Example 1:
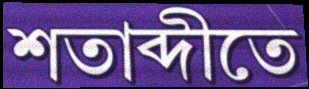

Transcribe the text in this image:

শতাব্দীতে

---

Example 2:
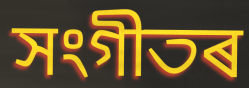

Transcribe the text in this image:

সংগীতৰ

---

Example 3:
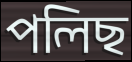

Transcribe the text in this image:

পলিছ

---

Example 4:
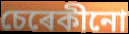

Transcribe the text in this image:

চেৰেকীনো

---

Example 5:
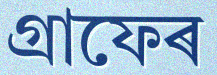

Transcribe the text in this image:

গ্ৰাফেৰ